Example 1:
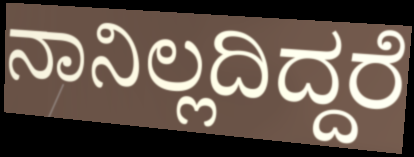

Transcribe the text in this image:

ನಾನಿಲ್ಲದಿದ್ದರೆ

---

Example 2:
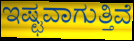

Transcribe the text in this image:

ಇಷ್ಟವಾಗುತ್ತಿವೆ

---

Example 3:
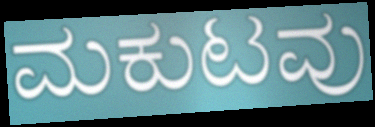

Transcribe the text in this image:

ಮಕುಟವು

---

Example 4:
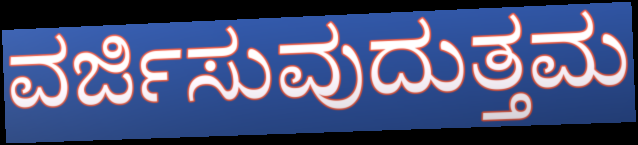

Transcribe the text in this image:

ವರ್ಜಿಸುವುದುತ್ತಮ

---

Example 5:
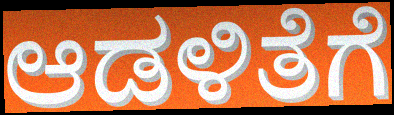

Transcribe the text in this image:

ಆಡಳಿತೆಗೆ